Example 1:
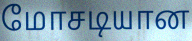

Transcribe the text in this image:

மோசடியான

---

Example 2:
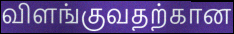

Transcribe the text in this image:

விளங்குவதற்கான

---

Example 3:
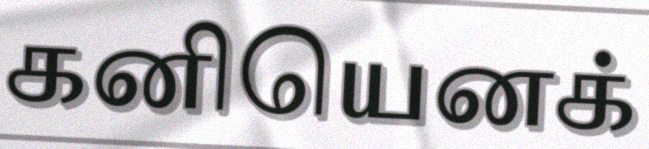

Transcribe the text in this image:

கனியெனக்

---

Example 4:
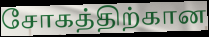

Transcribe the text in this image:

சோகத்திற்கான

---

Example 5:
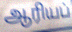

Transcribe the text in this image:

ஆரியப்